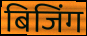
बिजिंग